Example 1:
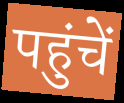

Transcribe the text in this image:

पहुंचें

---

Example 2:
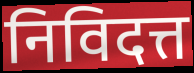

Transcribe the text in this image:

निविदत्त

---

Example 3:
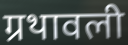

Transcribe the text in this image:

ग्रथावली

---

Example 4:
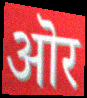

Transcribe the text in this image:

ऒर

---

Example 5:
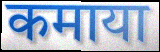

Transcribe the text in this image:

कमाया